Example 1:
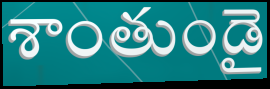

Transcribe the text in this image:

శాంతుండై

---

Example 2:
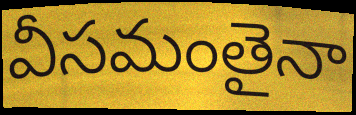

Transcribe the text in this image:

వీసమంతైనా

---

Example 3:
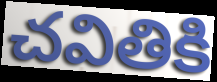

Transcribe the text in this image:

చవితికి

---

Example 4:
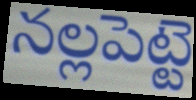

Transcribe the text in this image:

నల్లపెట్టె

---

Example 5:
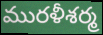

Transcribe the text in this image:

మురళీశర్మ